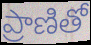
ప్రాణితో